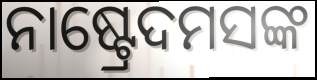
ନାଷ୍ଟ୍ରେଦମସଙ୍କ